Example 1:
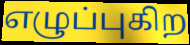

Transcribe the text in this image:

எழுப்புகிற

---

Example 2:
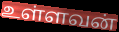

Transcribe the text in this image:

உள்ளவன்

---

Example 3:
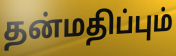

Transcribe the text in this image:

தன்மதிப்பும்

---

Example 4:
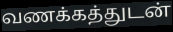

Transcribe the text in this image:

வணக்கத்துடன்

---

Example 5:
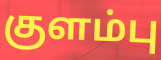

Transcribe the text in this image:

குளம்பு